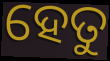
ହେତୁ